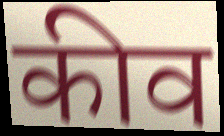
कीव